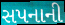
સપનાની